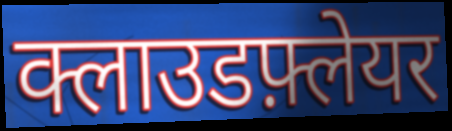
क्लाउडफ़्लेयर